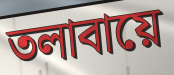
তলাবায়ে